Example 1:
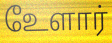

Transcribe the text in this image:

உேளார்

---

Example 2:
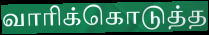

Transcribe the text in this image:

வாரிக்கொடுத்த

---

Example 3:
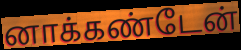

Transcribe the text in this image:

னாக்கண்டேன்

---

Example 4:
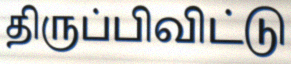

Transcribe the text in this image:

திருப்பிவிட்டு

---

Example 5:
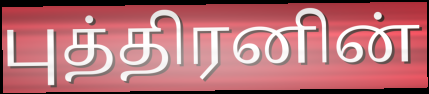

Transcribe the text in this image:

புத்திரனின்